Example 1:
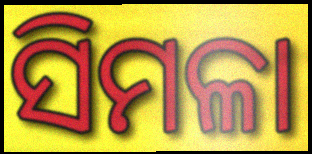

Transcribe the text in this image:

ସିମଳା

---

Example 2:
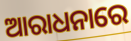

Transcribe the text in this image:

ଆରାଧନାରେ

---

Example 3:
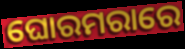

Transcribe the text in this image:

ଘୋରମରାରେ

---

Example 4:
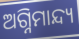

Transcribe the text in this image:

ଅଗ୍ନିମାନ୍ଦ୍ୟ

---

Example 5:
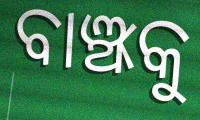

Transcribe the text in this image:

ବାଞ୍ଝକୁ